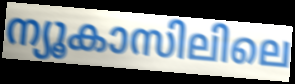
ന്യൂകാസിലിലെ